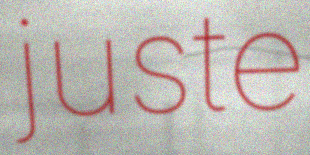
juste